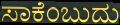
ಸಾಕೆಂಬುದು